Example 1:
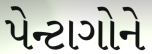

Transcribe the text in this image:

પેન્ટાગોને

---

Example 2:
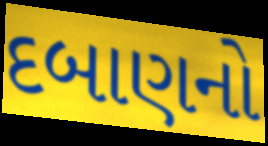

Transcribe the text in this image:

દબાણનો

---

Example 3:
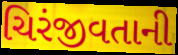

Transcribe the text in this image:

ચિરંજીવતાની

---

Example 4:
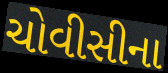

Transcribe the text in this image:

ચોવીસીના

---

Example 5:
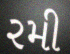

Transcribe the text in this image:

રમી